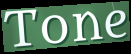
Tone